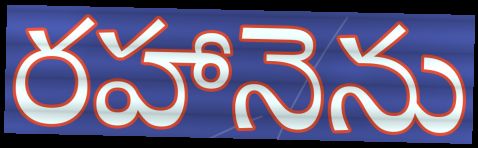
రహానెను